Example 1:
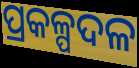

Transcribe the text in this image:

ପ୍ରକଳ୍ପଦଳ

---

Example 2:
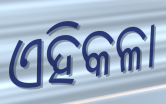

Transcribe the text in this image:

ଏହିକଳା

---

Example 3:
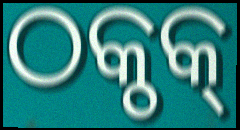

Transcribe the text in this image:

ଠକ୍ଠକ୍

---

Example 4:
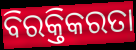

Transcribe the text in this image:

ବିରକ୍ତିକରତା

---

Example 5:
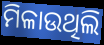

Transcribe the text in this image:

ମିଳାଉଥିଲି